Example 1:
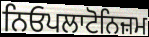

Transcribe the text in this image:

ਨਿਓਪਲਾਟੋਨਿਜ਼ਮ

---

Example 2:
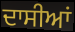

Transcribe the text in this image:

ਦਾਸੀਆਂ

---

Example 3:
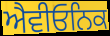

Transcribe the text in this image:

ਐਵੀਓਨਿਕ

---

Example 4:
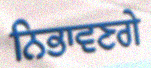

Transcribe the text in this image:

ਨਿਭਾਵਣਗੇ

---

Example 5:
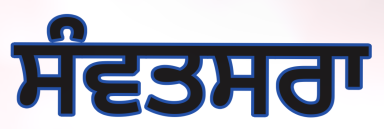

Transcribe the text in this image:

ਸੰਵਤਸਰਾ